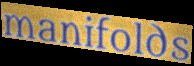
manifolds